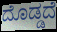
ದೊಡ್ಡದೆ